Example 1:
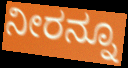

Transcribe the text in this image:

ನೀರನ್ನೂ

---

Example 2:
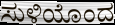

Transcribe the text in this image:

ಸುಳಿಯೊಂದ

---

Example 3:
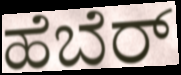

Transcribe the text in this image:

ಹೆಬೆರ್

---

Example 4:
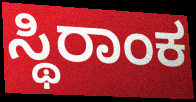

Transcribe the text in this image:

ಸ್ಥಿರಾಂಕ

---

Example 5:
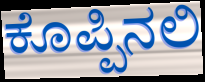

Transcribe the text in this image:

ಕೊಪ್ಪಿನಲಿ